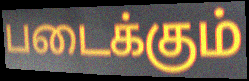
படைக்கும்